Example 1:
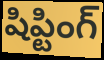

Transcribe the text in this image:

షిప్టింగ్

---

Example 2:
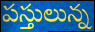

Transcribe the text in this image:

పస్తులున్న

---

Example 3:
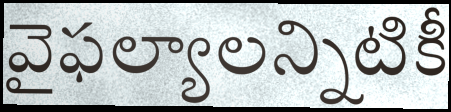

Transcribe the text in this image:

వైఫల్యాలన్నిటికీ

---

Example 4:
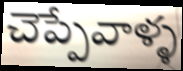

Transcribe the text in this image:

చెప్పేవాళ్ళ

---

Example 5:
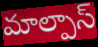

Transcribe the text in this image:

మాల్పాస్